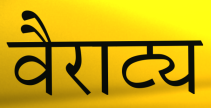
वैराट्य